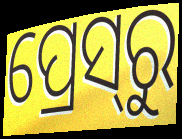
ପ୍ରେସ୍‍ରୁ